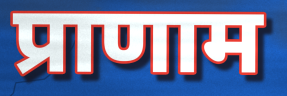
प्राणाम